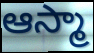
ఆస్మా